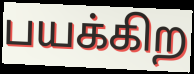
பயக்கிற